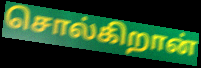
சொல்கிறான்